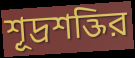
শূদ্রশক্তির